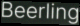
Beerling